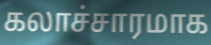
கலாச்சாரமாக